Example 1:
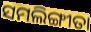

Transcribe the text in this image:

ସମଲିଙ୍ଗୀତା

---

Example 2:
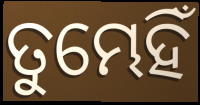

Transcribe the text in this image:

ତୁମ୍ଭେହିଁ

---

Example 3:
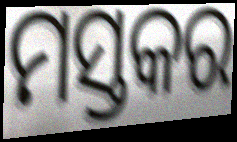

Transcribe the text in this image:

ମସ୍ତକର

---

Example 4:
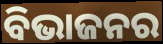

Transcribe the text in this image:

ବିଭାଜନର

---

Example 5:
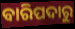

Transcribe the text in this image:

ବାରିପଦାରୁ